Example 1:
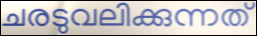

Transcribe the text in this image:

ചരടുവലിക്കുന്നത്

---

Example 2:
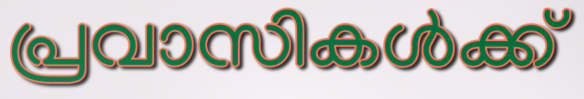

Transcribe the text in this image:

പ്രവാസികൾക്ക്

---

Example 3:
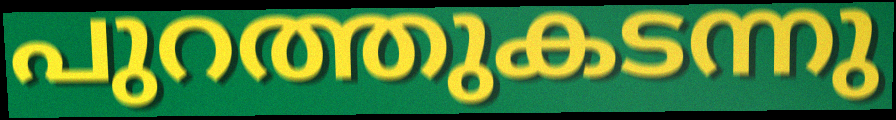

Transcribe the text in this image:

പുറത്തുകടന്നു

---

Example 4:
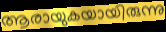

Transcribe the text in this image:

ആരായുകയായിരുന്നു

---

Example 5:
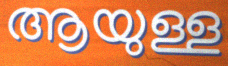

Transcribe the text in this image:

ആയുള്ള